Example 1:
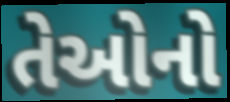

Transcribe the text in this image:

તેઓનો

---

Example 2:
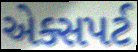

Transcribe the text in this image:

એક્સપર્ટ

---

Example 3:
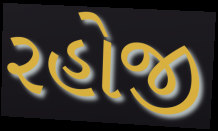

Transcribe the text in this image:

રહોજી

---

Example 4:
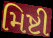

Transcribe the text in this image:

મિષ્ટી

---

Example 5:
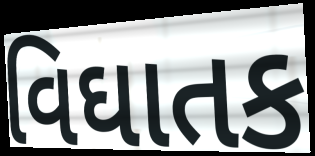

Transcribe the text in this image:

વિઘાતક